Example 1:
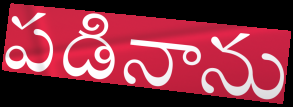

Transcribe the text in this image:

పడినాను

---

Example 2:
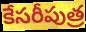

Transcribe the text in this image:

కేసరీపుత్ర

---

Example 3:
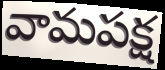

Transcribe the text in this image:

వామపక్ష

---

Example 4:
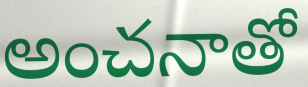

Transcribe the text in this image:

అంచనాతో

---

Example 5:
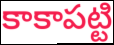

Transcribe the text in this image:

కాకాపట్టి